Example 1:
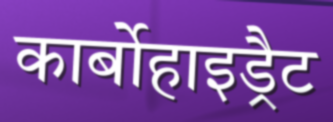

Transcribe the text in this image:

कार्बोहाइड्रैट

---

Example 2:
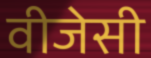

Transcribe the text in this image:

वीजेसी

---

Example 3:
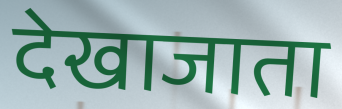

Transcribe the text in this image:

देखाजाता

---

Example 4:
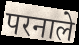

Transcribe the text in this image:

परनाले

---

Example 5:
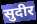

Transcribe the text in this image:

सुदीर